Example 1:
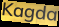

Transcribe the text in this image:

Kagda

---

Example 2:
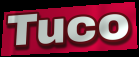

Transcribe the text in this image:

Tuco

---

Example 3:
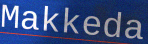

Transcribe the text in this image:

Makkeda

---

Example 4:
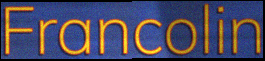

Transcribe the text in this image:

Francolin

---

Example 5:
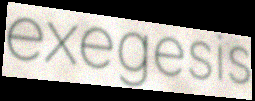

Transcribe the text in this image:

exegesis